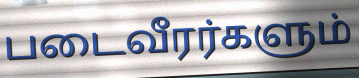
படைவீரர்களும்